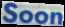
Soon